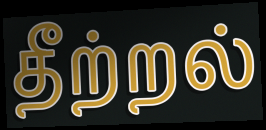
தீற்றல்